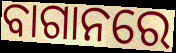
ବାଗାନରେ